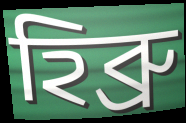
হিব্ৰু